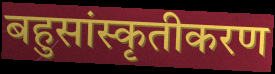
बहुसांस्कृतीकरण